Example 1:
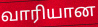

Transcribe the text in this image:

வாரியான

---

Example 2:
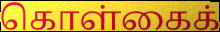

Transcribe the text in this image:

கொள்கைக்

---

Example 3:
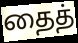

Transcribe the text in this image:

தைத்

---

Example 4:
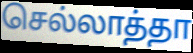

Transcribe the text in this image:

செல்லாத்தா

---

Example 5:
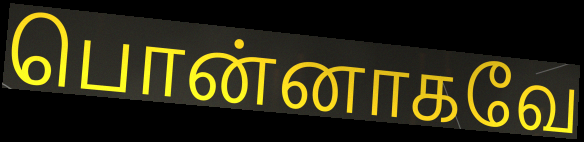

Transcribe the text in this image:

பொன்னாகவே